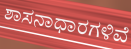
ಶಾಸನಾಧಾರಗಳಿವೆ